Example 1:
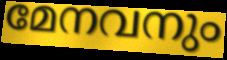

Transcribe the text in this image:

മേനവനും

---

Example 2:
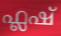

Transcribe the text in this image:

ഫ്ലഷ്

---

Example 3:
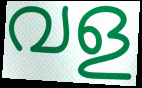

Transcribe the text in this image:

വള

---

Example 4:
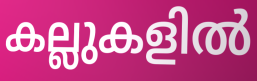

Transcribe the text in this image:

കല്ലുകളിൽ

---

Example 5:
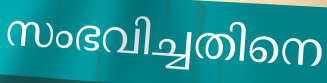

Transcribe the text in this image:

സംഭവിച്ചതിനെ